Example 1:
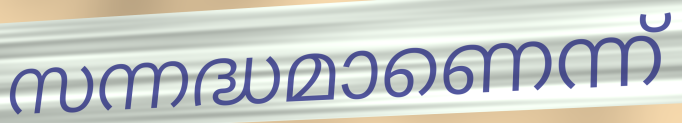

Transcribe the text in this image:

സന്നദ്ധമാണെന്ന്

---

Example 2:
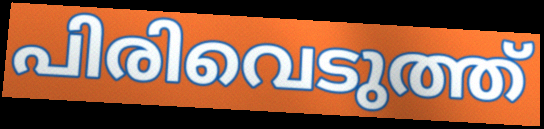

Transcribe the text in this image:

പിരിവെടുത്ത്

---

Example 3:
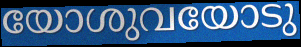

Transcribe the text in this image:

യോശുവയോടു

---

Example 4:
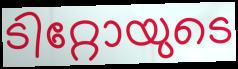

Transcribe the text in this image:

ടിറ്റോയുടെ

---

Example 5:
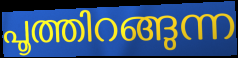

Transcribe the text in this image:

പൂത്തിറങ്ങുന്ന